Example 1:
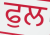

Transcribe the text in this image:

ਫੁਲ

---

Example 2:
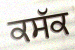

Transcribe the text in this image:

ਕਸੱਕ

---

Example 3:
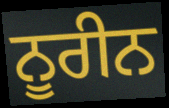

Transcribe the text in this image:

ਨੂਰੀਨ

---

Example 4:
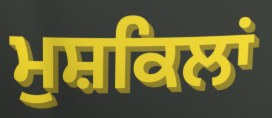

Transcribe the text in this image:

ਮੁਸ਼ਕਿਲਾਂ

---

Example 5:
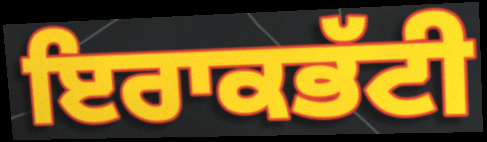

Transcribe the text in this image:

ਇਰਾਕਭੱਟੀ